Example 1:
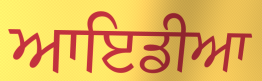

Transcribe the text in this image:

ਆਇਡੀਆ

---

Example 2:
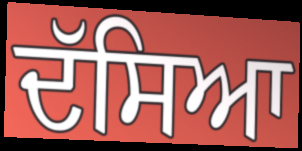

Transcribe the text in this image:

ਦੱਸਿਆ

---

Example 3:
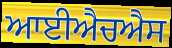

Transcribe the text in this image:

ਆਈਐਚਐਸ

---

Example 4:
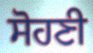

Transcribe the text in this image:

ਸੋਹਣੀ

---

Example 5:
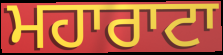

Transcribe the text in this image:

ਮਹਾਰਾਟਾ